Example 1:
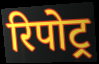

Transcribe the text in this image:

रिपोट्र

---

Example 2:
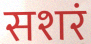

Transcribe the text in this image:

सशरं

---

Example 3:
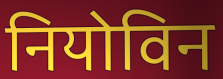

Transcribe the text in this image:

नियोविन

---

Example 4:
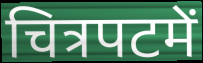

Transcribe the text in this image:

चित्रपटमें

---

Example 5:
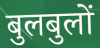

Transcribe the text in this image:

बुलबुलों